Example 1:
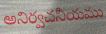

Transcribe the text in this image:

అనిర్వచనీయము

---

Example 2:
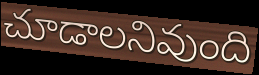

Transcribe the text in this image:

చూడాలనివుంది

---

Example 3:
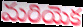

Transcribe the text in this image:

మరియెక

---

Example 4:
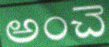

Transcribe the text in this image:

అంచె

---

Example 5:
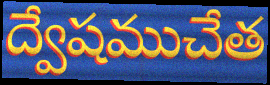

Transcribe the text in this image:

ద్వేషముచేత